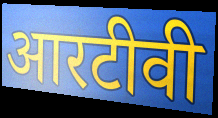
आरटीवी